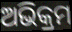
ଅଭିକ୍ରମ